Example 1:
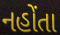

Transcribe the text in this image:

નહોંતા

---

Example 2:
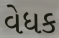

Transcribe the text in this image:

વેધક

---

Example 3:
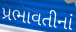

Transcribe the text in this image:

પ્રભાવતીનાં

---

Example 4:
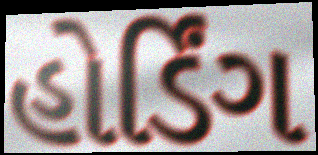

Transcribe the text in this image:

હોર્ડિંગ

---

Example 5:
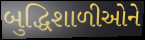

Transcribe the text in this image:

બુદ્ધિશાળીઓને